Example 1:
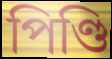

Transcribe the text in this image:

পিণ্ডি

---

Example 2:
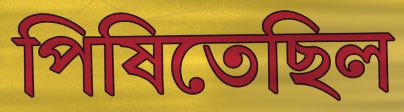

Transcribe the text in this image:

পিষিতেছিল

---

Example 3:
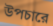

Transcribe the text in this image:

উপচারে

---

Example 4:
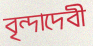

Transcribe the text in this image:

বৃন্দাদেবী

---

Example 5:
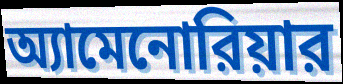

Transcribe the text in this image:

অ্যামেনোরিয়ার